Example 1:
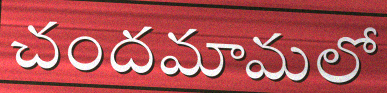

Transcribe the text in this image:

చందమామలో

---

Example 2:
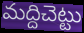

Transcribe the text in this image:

మద్దిచెట్టు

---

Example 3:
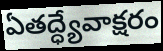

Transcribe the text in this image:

ఏతద్ధ్యేవాక్షరం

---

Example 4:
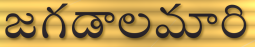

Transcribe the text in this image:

జగడాలమారి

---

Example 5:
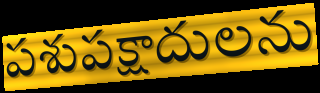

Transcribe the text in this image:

పశుపక్షాదులను